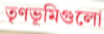
তৃণভূমিগুলো